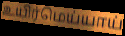
உயிர்மெய்யாய்